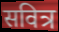
सवित्र